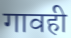
गावही